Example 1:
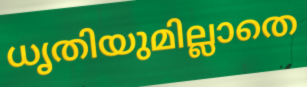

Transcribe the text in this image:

ധൃതിയുമില്ലാതെ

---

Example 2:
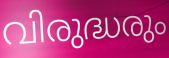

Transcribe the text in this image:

വിരുദ്ധരും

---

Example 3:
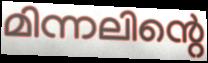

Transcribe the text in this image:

മിന്നലിന്റെ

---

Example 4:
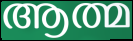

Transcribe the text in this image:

ആത്മ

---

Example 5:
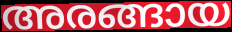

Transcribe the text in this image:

അരങ്ങായ